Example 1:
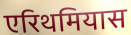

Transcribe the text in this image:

एरिथमियास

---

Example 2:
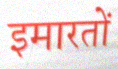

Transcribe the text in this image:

इमारतों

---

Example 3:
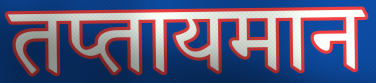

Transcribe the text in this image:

तप्तायमान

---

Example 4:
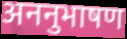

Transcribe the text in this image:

अननुभाषण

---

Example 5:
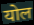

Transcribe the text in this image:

योल